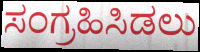
ಸಂಗ್ರಹಿಸಿಡಲು